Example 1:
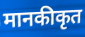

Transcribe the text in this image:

मानकीकृत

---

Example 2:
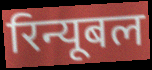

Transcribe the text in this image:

रिन्यूबल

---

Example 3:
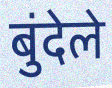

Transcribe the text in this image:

बुंदेले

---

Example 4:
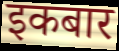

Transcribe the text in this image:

इकबार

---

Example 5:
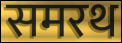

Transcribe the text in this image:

समरथ